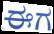
ಈಗ